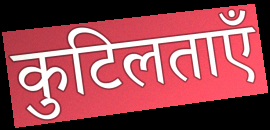
कुटिलताएँ